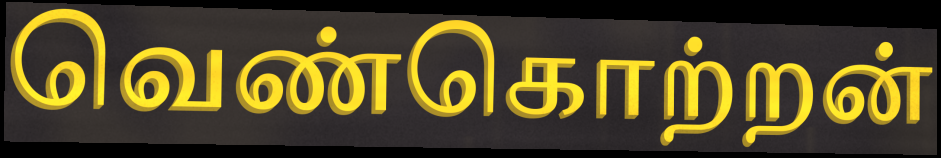
வெண்கொற்றன்